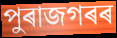
পুৰাজগৰৰ